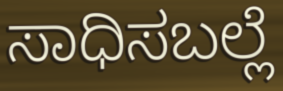
ಸಾಧಿಸಬಲ್ಲೆ